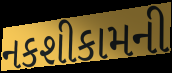
નકશીકામની